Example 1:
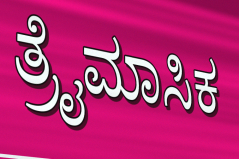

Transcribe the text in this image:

ತ್ರೈಮಾಸಿಕ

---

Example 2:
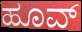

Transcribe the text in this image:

ಹೂವ್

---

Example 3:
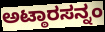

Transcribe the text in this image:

ಅಟ್ಠಾರಸನ್ನಂ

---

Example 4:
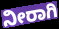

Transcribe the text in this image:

ನೀರಾಗಿ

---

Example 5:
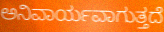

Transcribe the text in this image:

ಅನಿವಾರ್ಯವಾಗುತ್ತದೆ